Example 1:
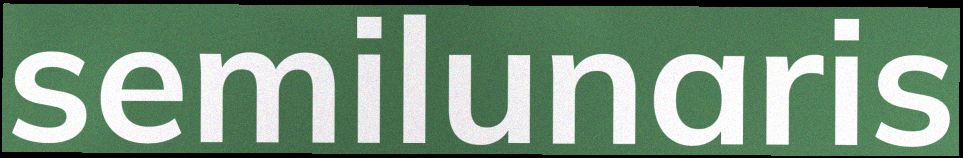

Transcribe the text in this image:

semilunaris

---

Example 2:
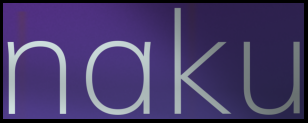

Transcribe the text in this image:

naku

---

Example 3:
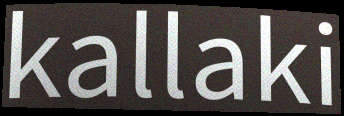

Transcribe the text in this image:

kallaki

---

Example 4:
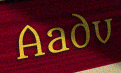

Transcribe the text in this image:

Aadu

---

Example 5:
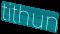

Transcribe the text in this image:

tithun